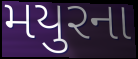
મયુરના